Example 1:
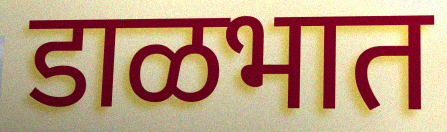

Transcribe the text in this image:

डाळभात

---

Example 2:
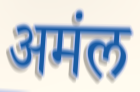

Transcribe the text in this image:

अमंल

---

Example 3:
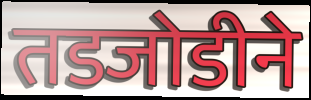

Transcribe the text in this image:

तडजोडीने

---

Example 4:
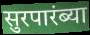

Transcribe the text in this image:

सुरपारंब्या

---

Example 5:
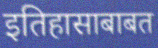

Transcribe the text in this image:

इतिहासाबाबत